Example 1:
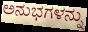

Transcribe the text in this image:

ಅನುಭಗಳನ್ನು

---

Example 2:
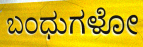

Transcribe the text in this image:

ಬಂಧುಗಳೋ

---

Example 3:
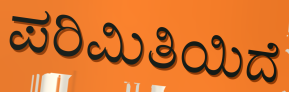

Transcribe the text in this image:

ಪರಿಮಿತಿಯಿದೆ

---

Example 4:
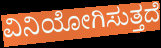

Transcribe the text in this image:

ವಿನಿಯೋಗಿಸುತ್ತದೆ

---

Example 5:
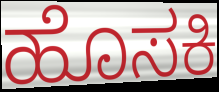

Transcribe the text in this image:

ಹೊಸಕಿ